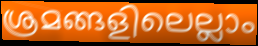
ശ്രമങ്ങളിലെല്ലാം